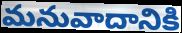
మనువాదానికి